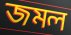
জমল